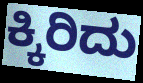
ಕ್ಕಿರಿದು